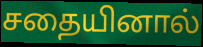
சதையினால்